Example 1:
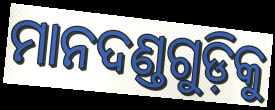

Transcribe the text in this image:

ମାନଦଣ୍ଡଗୁଡ଼ିକୁ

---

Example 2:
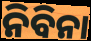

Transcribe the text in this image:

ନିବିନା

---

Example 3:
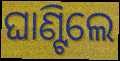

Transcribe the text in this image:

ଘାଣ୍ଟିଲେ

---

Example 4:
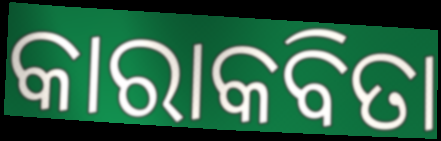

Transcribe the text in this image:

କାରାକବିତା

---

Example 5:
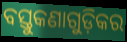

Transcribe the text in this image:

ବସ୍ତୁକଣାଗୁଡ଼ିକର